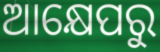
ଆକ୍ଷେପରୁ